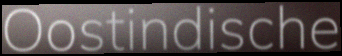
Oostindische